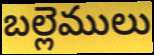
బల్లెములు